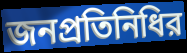
জনপ্রতিনিধির